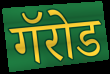
गॅरोड